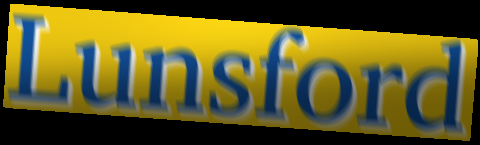
Lunsford